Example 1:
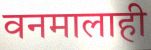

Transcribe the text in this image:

वनमालाही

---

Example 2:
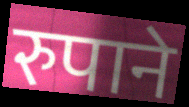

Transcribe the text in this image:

रुपाने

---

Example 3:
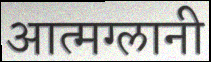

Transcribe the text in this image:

आत्मग्लानी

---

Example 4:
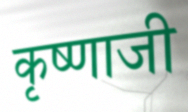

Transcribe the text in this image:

कृष्णाजी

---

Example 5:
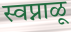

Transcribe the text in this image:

स्वप्नाळू